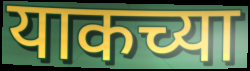
याकच्या